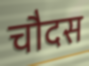
चौदस